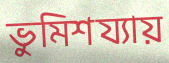
ভুমিশয্যায়